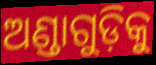
ଅଣ୍ଡାଗୁଡ଼ିକୁ